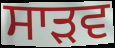
ਸਾੜਵ